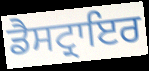
ਡੈਸਟ੍ਰਾਇਰ